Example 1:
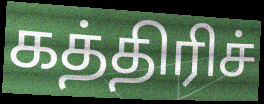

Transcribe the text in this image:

கத்திரிச்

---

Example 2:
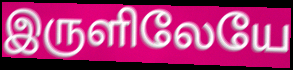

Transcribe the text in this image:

இருளிலேயே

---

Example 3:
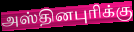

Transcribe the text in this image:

அஸ்தினபுரிக்கு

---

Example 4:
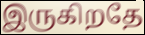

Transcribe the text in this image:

இருகிறதே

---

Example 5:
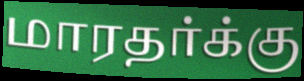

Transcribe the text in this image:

மாரதர்க்கு